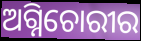
ଅଗ୍ନିଚୋରୀର